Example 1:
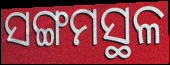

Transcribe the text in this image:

ସଙ୍ଗମସ୍ଥଳ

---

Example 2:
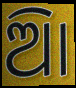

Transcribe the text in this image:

ଆି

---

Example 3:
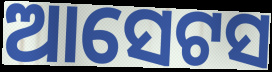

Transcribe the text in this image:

ଆସେଟସ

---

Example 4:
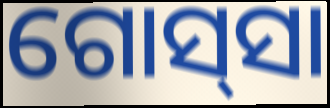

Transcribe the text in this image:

ଗୋସ୍‌ସା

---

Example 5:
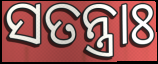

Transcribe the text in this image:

ସତନ୍ତ୍ରାଃ